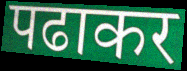
पढाकर